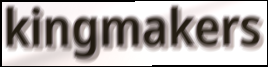
kingmakers